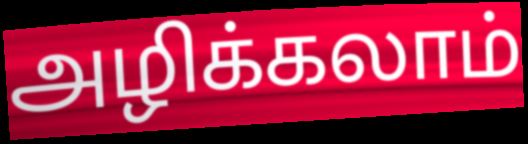
அழிக்கலாம்